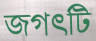
জগৎটি